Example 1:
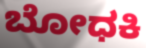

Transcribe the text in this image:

ಬೋಧಕಿ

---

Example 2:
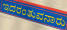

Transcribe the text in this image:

ಇದರಂತುವನಾರು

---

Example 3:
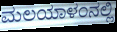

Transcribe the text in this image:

ಮಲಯಾಳಂನಲ್ಲಿ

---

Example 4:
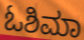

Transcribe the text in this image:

ಓಶಿಮಾ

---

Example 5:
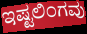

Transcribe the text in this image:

ಇಷ್ಟಲಿಂಗವು